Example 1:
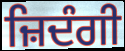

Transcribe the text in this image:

ਜ਼ਿਦੰਗੀ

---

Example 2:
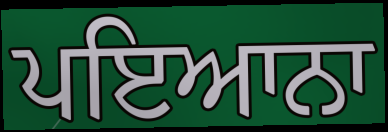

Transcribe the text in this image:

ਪਇਆਨਾ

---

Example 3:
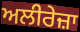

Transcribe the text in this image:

ਅਲੀਰੇਜ਼ਾ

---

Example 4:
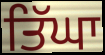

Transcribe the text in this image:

ਤਿੱਘਾ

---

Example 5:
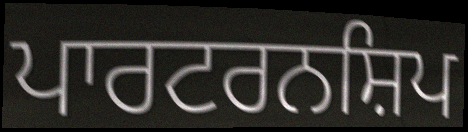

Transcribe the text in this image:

ਪਾਰਟਰਨਸ਼ਿਪ